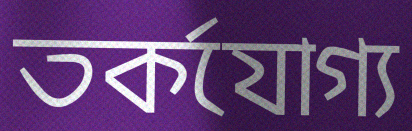
তর্কযোগ্য